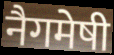
नैगमेषी